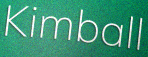
Kimball